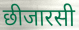
छीजारसी